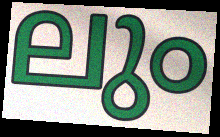
ലും